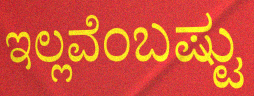
ಇಲ್ಲವೆಂಬಷ್ಟು